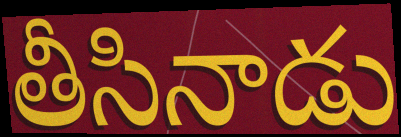
తీసినాడు